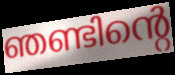
ഞണ്ടിന്റെ